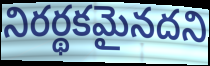
నిరర్థకమైనదని